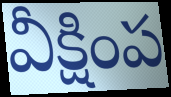
వీక్షింప